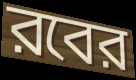
রবের